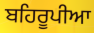
ਬਹਿਰੂਪੀਆ